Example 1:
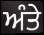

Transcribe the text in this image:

ਅੰਤੇ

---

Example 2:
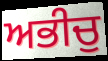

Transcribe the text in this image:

ਅਭੀਚੁ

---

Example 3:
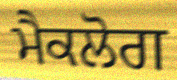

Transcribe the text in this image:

ਮੈਕਲੋਗ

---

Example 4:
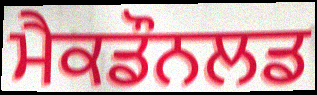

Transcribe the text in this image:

ਮੈਕਡੌਨਲਡ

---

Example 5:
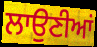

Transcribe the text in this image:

ਲਾਉਣੀਆਂ